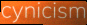
cynicism